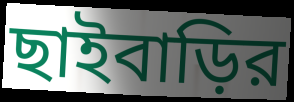
ছাইবাড়ির